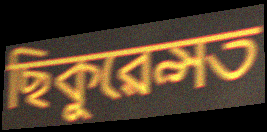
ছিকুৱেন্সত